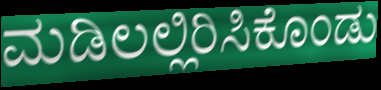
ಮಡಿಲಲ್ಲಿರಿಸಿಕೊಂಡು